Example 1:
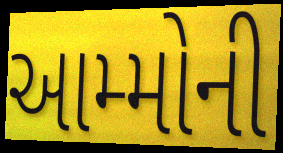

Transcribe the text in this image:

આમ્મોની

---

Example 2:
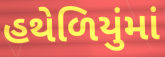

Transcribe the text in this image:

હથેળિયુંમાં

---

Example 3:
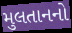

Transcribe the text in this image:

મુલતાનનો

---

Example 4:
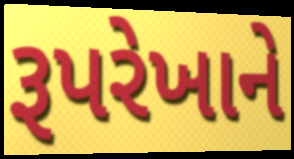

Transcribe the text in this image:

રૂપરેખાને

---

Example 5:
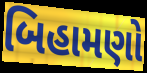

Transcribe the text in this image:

બિહામણો